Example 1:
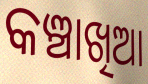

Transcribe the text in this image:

କଞ୍ଚାଖିଆ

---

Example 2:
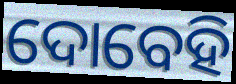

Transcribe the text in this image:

ଦୋବେହି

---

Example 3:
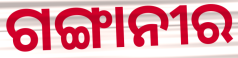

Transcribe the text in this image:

ଗଙ୍ଗାନୀର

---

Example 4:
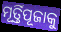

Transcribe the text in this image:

ମୂର୍ତ୍ତିପୂଜାକୁ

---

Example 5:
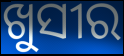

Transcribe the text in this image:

ଖୁସୀର